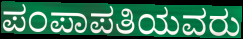
ಪಂಪಾಪತಿಯವರು